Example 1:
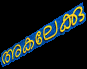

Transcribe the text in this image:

അകലേക്കു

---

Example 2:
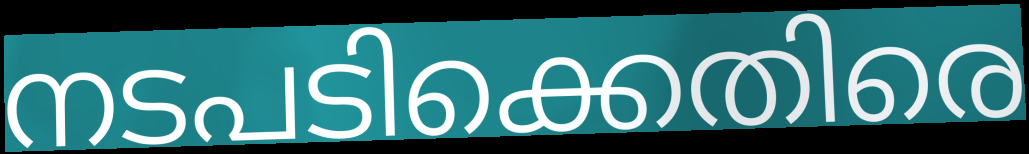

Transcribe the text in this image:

നടപടിക്കെതിരെ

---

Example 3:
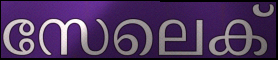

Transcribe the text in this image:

സേലെക്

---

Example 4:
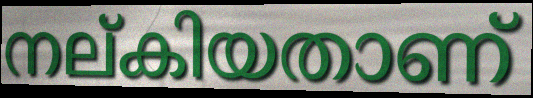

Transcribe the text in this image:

നല്കിയതാണ്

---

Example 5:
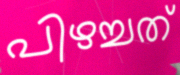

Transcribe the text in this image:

പിഴച്ചത്